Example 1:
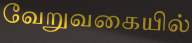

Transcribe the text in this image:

வேறுவகையில்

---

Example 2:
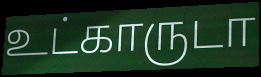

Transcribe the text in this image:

உட்காருடா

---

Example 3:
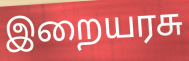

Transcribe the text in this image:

இறையரசு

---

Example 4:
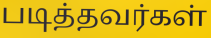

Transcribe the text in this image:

படித்தவர்கள்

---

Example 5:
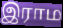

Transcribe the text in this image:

இராம